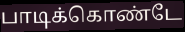
பாடிக்கொண்டே